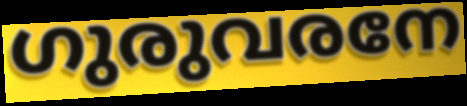
ഗുരുവരനേ